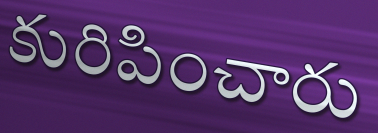
కురిపించారు